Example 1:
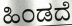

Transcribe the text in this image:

ಹಿಂಡದೆ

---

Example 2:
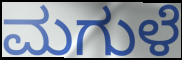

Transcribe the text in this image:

ಮಗುಳೆ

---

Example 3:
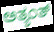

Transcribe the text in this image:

ಅತ್ಯಂತ್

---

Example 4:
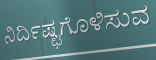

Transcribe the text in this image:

ನಿರ್ದಿಷ್ಟಗೊಳಿಸುವ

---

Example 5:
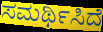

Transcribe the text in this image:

ಸಮರ್ಥಿಸಿದೆ